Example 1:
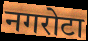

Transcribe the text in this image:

नगरोटा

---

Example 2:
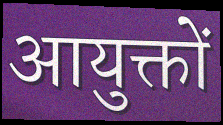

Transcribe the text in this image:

आयुक्तों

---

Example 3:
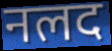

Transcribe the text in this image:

नलद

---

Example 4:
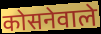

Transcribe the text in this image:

कोसनेवाले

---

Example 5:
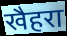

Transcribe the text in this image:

खैहरा